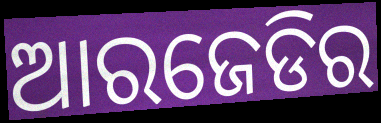
ଆରଜେଡିର